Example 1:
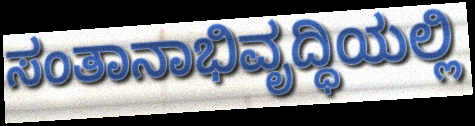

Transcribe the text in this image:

ಸಂತಾನಾಭಿವೃದ್ಧಿಯಲ್ಲಿ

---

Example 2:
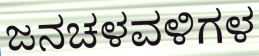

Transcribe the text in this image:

ಜನಚಳವಳಿಗಳ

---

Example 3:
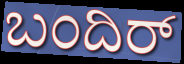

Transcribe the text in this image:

ಬಂದಿರ್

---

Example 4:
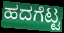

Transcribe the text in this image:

ಹದಗೆಟ್ಟ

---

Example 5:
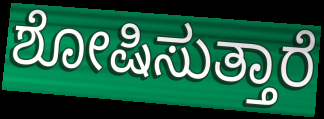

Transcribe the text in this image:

ಶೋಷಿಸುತ್ತಾರೆ